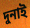
দুনাই